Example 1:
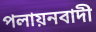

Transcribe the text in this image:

পলায়নবাদী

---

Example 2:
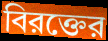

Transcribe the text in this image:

বিরক্তের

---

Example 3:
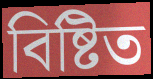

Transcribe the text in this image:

বিষ্টিত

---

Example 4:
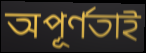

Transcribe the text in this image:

অপূর্ণতাই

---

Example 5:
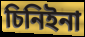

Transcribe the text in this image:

চিনিইনা